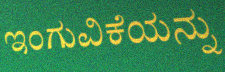
ಇಂಗುವಿಕೆಯನ್ನು